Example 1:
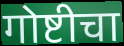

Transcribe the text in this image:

गोष्टीचा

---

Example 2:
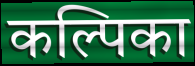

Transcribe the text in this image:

कल्पिका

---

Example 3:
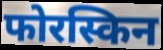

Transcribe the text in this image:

फोरस्किन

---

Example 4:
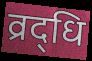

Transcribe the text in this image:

व्रद्धि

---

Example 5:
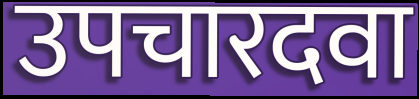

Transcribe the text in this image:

उपचारदवा